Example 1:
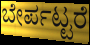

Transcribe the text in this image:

ಬೇರ್ಪಟ್ಟರೆ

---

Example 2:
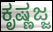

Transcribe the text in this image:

ಕೃಷ್ಣಜ್ಜ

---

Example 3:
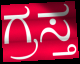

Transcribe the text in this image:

ಗ್ರಸ್ತ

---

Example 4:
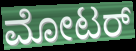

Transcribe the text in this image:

ಮೋಟರ್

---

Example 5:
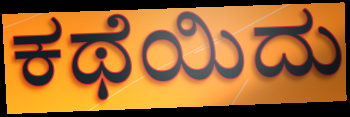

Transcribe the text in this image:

ಕಥೆಯಿದು